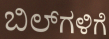
ಬಿಲ್‌ಗಳಿಗೆ